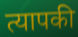
त्यापकी